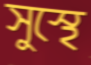
সুস্থে